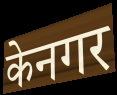
केनगर